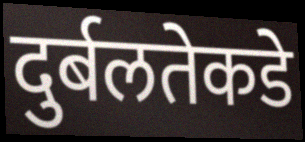
दुर्बलतेकडे